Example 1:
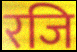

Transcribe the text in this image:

रजि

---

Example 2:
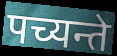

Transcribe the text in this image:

पच्यन्ते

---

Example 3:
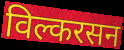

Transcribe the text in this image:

विल्करसन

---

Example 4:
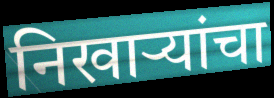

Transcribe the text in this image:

निखार्‍यांचा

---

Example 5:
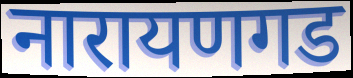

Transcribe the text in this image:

नारायणगड